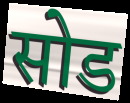
सोड